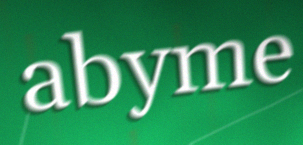
abyme